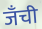
जँची